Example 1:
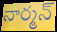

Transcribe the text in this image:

నార్మన్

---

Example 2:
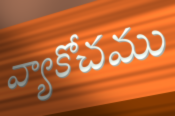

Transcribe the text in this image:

వ్యాకోచము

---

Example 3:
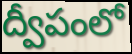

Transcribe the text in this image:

ద్వీపంలో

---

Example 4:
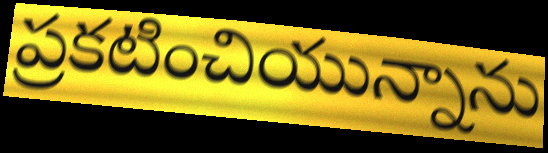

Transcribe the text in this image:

ప్రకటించియున్నాను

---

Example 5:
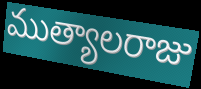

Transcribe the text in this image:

ముత్యాలరాజు